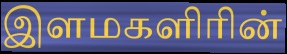
இளமகளிரின்